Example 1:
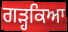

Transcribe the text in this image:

ਗੜ੍ਹਕਿਆ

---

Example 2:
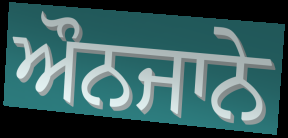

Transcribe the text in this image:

ਔਨਜਾਨੇ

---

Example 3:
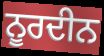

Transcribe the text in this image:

ਨੂਰਦੀਨ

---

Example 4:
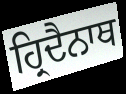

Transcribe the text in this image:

ਹ੍ਰਿਦੈਨਾਥ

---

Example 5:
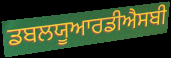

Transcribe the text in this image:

ਡਬਲਯੂਆਰਡੀਐਸਬੀ